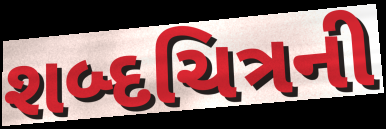
શબ્દચિત્રની